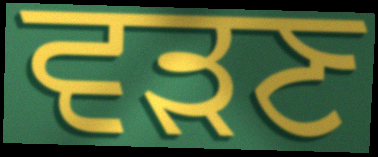
ਵੜਣ